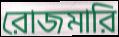
রোজমারি